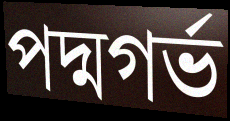
পদ্মগর্ভ